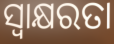
ସ୍ବାକ୍ଷରତା